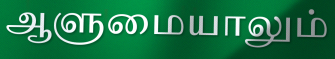
ஆளுமையாலும்